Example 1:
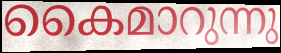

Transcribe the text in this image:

കൈമാറുന്നു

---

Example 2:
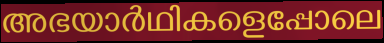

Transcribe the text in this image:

അഭയാർഥികളെപ്പോലെ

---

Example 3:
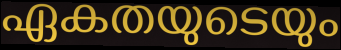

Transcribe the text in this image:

ഏകതയുടെയും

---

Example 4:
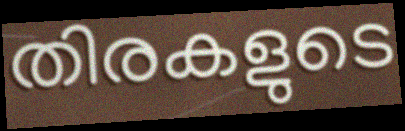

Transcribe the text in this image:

തിരകളുടെ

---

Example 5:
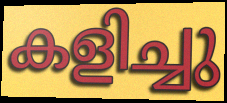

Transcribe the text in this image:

കളിച്ചു